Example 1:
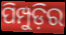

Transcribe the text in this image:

ପିମ୍ପୁଡ଼ିର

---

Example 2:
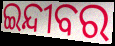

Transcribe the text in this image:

ଇନ୍ଦୀବର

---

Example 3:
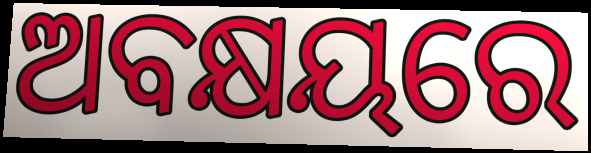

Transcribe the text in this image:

ଅବକ୍ଷୟରେ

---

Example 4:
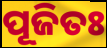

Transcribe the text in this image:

ପୂଜିତଃ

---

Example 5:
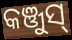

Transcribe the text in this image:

କଞ୍ଜୁସ୍